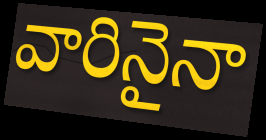
వారినైనా